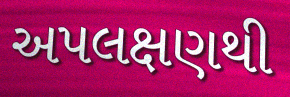
અપલક્ષણથી